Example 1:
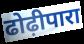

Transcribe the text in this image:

ढोढ़ीपारा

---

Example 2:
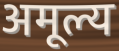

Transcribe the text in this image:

अमूल्य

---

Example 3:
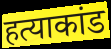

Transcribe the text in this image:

हत्याकांड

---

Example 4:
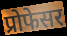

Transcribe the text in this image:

प्रोफेसर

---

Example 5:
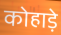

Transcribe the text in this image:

कोहाड़े